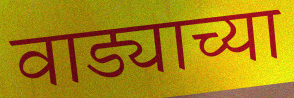
वाड्याच्या